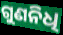
ଗୁଣନିଧି